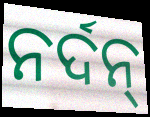
ନର୍ଦନ୍